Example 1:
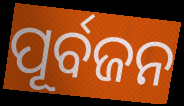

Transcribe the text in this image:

ପୂର୍ବଜନ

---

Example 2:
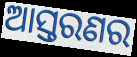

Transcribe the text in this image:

ଆସ୍ତରଣର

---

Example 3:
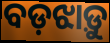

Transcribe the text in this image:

ବଡ଼ଝାଡ଼ୁ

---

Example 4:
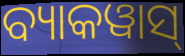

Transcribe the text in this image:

ବ୍ୟାକୱାସ୍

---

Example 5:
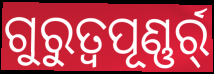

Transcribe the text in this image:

ଗୁରୁତ୍ୱପୂଣ୍ଣର୍ର୍